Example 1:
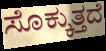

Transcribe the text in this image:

ಸೊಕ್ಕುತ್ತದೆ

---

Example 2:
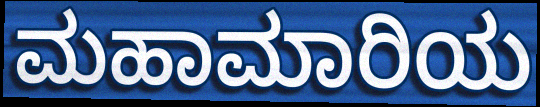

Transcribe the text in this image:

ಮಹಾಮಾರಿಯ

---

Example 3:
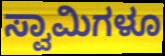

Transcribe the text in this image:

ಸ್ವಾಮಿಗಳೂ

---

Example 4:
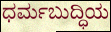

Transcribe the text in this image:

ಧರ್ಮಬುದ್ಧಿಯ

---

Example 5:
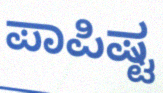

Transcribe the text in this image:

ಪಾಪಿಷ್ಟ